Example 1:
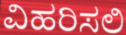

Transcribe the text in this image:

ವಿಹರಿಸಲಿ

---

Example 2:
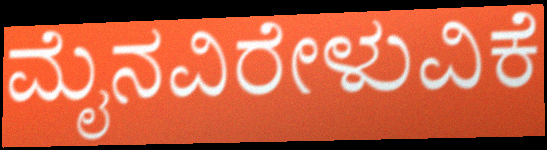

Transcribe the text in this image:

ಮೈನವಿರೇಳುವಿಕೆ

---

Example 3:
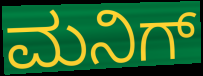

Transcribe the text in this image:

ಮನಿಗ್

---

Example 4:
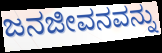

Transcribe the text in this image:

ಜನಜೀವನವನ್ನು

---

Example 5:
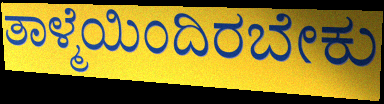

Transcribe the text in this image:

ತಾಳ್ಮೆಯಿಂದಿರಬೇಕು